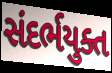
સંદર્ભયુક્ત